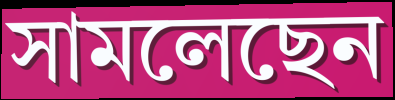
সামলেছেন